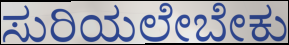
ಸುರಿಯಲೇಬೇಕು